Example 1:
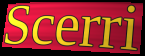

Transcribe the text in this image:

Scerri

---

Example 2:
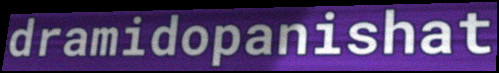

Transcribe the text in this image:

dramidopanishat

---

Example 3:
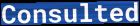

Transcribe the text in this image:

Consulted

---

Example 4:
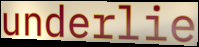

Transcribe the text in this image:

underlie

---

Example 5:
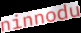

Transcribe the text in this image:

ninnodu